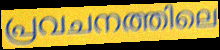
പ്രവചനത്തിലെ